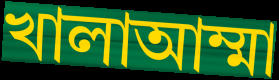
খালাআম্মা